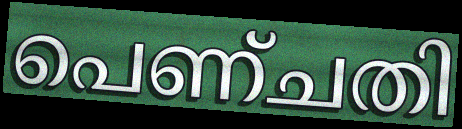
പെണ്ചതി